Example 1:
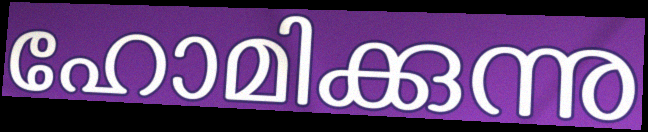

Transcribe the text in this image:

ഹോമിക്കുന്നു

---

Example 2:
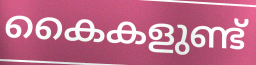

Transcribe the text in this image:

കൈകളുണ്ട്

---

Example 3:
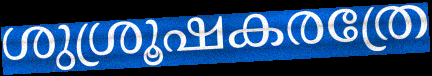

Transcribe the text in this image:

ശുശ്രൂഷകരത്രേ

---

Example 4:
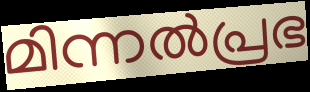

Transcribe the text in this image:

മിന്നൽപ്രഭ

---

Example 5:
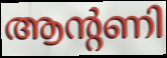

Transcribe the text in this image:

ആന്റണി